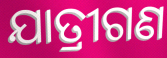
ଯାତ୍ରୀଗଣ